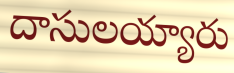
దాసులయ్యారు